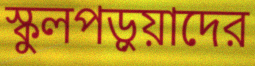
স্কুলপড়ুয়াদের